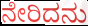
ನೇರಿದನು